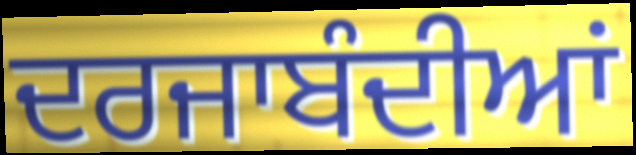
ਦਰਜਾਬੰਦੀਆਂ